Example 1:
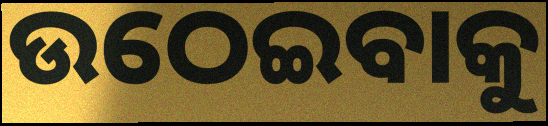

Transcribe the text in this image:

ଉଠେଇବାକୁ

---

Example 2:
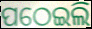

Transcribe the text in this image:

ପଠେଇଲି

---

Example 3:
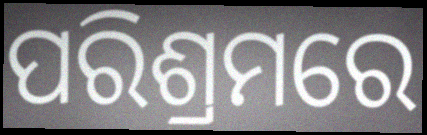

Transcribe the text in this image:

ପରିଶ୍ରମରେ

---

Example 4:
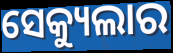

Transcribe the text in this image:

ସେକ୍ୟୁଲାର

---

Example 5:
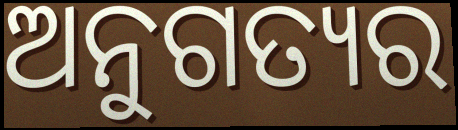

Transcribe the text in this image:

ଅନୁଗତ୍ୟର